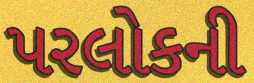
પરલોકની